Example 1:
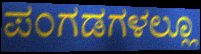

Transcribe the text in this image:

ಪಂಗಡಗಳಲ್ಲೂ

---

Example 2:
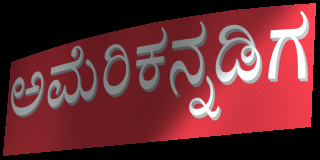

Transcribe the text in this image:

ಅಮೆರಿಕನ್ನಡಿಗ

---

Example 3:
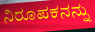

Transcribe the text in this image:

ನಿರೂಪಕನನ್ನು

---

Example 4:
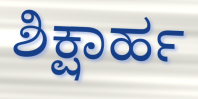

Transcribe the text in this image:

ಶಿಕ್ಷಾರ್ಹ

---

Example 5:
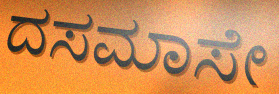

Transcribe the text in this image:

ದಸಮಾಸೇ